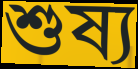
শুষ্য